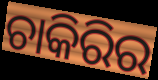
ଚାକିରିର